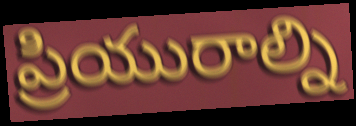
ప్రియురాల్ని